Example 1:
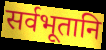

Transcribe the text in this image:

सर्वभूतानि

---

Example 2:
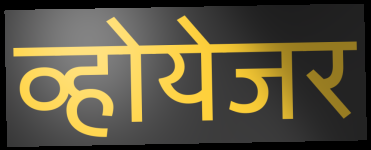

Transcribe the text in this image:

व्होयेजर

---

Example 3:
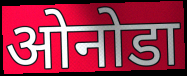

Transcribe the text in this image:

ओनोडा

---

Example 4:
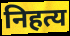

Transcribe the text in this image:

निहत्य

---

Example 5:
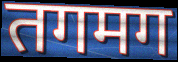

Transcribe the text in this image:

तगमग